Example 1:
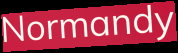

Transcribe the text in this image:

Normandy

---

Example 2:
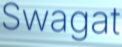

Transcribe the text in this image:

Swagat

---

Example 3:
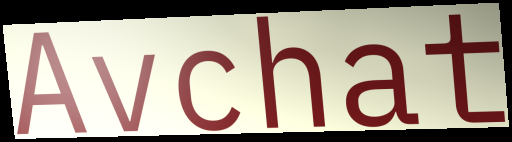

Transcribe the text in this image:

Avchat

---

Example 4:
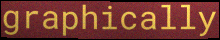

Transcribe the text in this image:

graphically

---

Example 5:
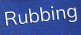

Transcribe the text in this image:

Rubbing